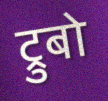
ट्रुबो